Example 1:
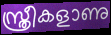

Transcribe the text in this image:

സ്ത്രീകളാണു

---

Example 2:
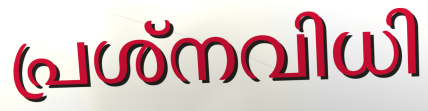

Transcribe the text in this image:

പ്രശ്നവിധി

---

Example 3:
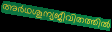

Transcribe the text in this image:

അർഥശൂന്യജീവിതത്തിൽ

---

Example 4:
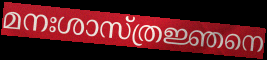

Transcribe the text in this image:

മനഃശാസ്ത്രജ്ഞനെ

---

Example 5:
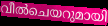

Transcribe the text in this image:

വീൽചെയറുമായി